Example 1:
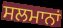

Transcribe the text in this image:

ਸਲਮਾਨਾਂ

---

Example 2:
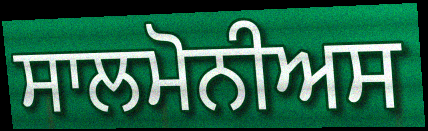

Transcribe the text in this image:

ਸਾਲਮੋਨੀਅਸ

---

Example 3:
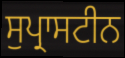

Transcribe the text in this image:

ਸੁਪ੍ਰਾਸਟੀਨ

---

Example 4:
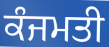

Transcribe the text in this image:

ਕੰਜਮਤੀ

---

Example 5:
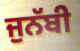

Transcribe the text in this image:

ਜੁਨੱਬੀ